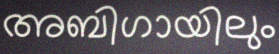
അബിഗായിലും